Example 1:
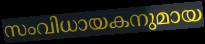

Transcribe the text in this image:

സംവിധായകനുമായ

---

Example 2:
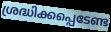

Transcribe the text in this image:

ശ്രദ്ധിക്കപ്പെടേണ്ട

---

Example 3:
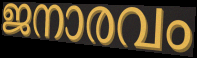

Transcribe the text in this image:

ജനാരവം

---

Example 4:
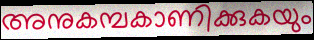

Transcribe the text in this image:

അനുകമ്പകാണിക്കുകയും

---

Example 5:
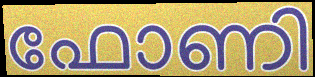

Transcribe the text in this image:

ഫോണി